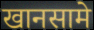
खानसामे